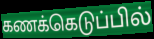
கணக்கெடுப்பில்